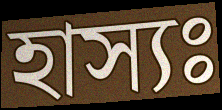
হাস্যঃ